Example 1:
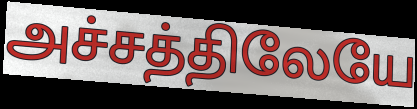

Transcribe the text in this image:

அச்சத்திலேயே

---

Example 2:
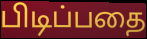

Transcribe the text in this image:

பிடிப்பதை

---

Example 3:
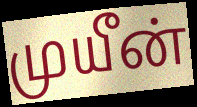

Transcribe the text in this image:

முயீன்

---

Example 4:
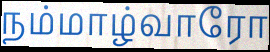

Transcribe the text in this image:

நம்மாழ்வாரோ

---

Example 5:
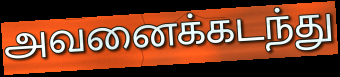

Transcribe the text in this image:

அவனைக்கடந்து